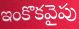
ఇంకొకవైపు